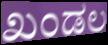
ಖಂಡಲ